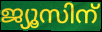
ജ്യൂസിന്